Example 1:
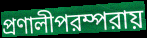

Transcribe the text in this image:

প্রণালীপরম্পরায়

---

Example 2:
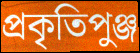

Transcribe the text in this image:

প্রকৃতিপুঞ্জ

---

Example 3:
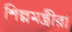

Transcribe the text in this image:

শিল্পমন্ত্রীরা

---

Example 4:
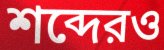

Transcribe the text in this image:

শব্দেরও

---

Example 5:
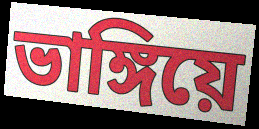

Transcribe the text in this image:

ভাঙ্গিয়ে